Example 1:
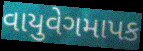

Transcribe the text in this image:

વાયુવેગમાપક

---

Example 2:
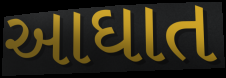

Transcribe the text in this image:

આઘાત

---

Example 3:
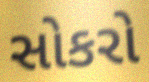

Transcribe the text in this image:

સોકરો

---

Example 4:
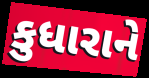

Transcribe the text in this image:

કુધારાને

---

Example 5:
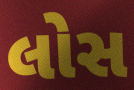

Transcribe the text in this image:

લોસ